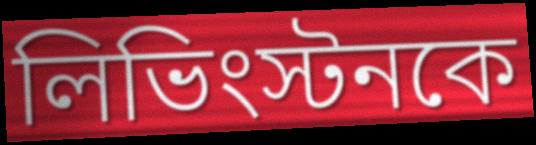
লিভিংস্টনকে